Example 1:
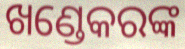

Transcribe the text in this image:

ଖଣ୍ଡେକରଙ୍କ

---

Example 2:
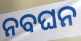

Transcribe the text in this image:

ନବଘନ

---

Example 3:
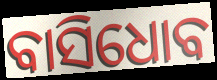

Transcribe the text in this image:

ବାସିଧୋବ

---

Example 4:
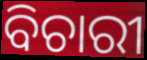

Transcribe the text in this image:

ବିଚାରୀ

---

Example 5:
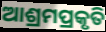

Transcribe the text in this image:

ଆଶ୍ରମପ୍ରକୃତି